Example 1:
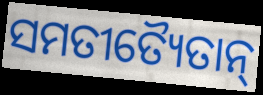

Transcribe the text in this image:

ସମତୀତ୍ୟୈତାନ୍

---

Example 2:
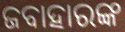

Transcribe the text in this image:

ଜବାହାରଙ୍କ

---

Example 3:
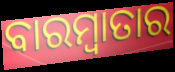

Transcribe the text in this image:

ବାରମ୍ବାତାର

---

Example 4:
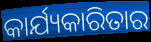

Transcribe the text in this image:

କାର୍ଯ୍ୟକାରିତାର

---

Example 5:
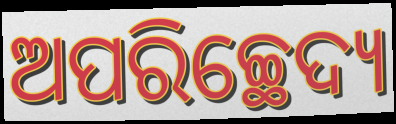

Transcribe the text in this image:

ଅପରିଚ୍ଛେଦ୍ୟ